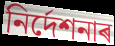
নিৰ্দেশনাৰ